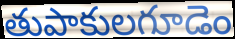
తుపాకులగూడెం